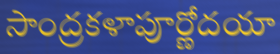
సాంద్రకళాపూర్ణోదయా